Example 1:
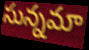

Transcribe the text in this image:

సున్నమా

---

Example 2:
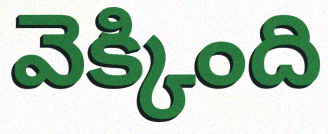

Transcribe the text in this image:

వెక్కింది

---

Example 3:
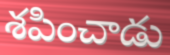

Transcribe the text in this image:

శపించాడు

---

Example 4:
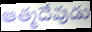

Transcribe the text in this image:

ఆత్మదేవుడు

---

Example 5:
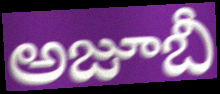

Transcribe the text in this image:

అజూబీ